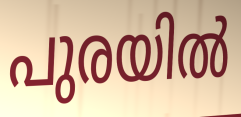
പുരയിൽ